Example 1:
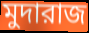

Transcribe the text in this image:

মুদারাজ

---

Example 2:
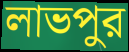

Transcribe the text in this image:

লাভপুর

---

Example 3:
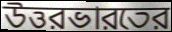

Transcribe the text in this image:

উত্তরভারতের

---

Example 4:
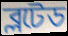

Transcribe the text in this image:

ব্লটেড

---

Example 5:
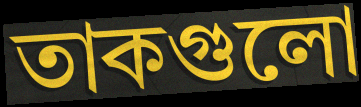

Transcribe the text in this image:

তাকগুলো